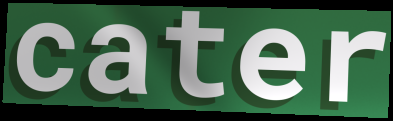
cater